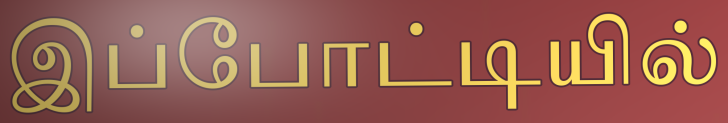
இப்போட்டியில்